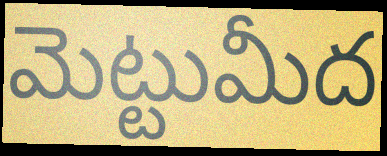
మెట్టుమీద